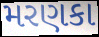
મરણકા